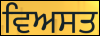
ਵਿਅਸਤ